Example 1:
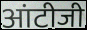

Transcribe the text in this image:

आंटीजी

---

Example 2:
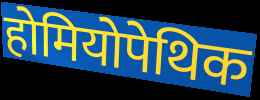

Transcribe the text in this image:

होमियोपेथिक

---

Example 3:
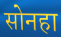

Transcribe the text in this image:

सोनहा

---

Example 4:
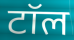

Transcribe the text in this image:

टॉल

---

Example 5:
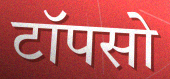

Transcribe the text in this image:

टॉपसो